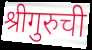
श्रीगुरुची